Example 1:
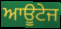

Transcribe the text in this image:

ਆਊਟੇਜ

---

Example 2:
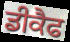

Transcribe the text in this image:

ਡੀਕੈਫ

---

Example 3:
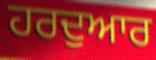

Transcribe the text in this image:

ਹਰਦੁਆਰ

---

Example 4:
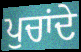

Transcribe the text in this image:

ਪੁਚਾਂਦੇ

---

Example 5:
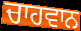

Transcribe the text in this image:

ਚਾਹਵਾਨ